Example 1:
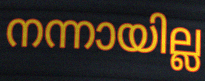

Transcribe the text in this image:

നന്നായില്ല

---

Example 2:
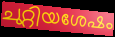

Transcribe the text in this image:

ചുറ്റിയശേഷം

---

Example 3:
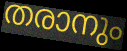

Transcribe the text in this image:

തരാനും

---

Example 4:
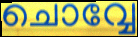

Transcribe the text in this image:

ചൊവ്വേ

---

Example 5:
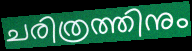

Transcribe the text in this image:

ചരിത്രത്തിനും